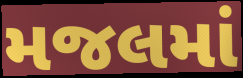
મજલમાં